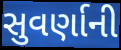
સુવર્ણાની